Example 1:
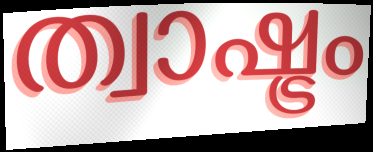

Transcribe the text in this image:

ത്വാഷ്ട്രം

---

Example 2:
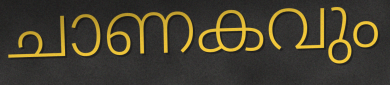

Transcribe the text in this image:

ചാണകവും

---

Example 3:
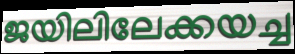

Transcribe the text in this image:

ജയിലിലേക്കയച്ച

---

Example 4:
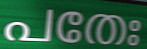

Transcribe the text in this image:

പതേഃ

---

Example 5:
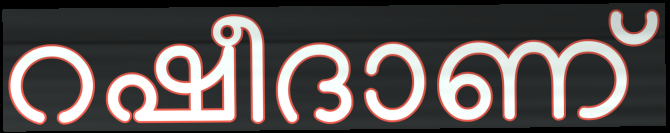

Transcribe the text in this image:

റഷീദാണ്